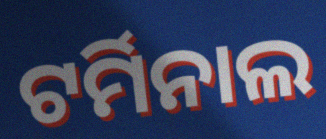
ଟର୍ମିନାଲ